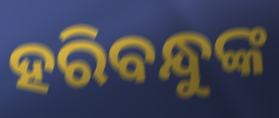
ହରିବନ୍ଧୁଙ୍କ